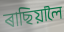
ৰাছিয়ালৈ